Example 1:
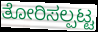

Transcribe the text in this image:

ತೋರಿಸಲ್ಪಟ್ಟ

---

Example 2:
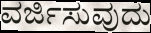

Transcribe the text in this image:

ವರ್ಜಿಸುವುದು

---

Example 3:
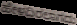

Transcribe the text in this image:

ಹೇಳದಿರಲಾಗದು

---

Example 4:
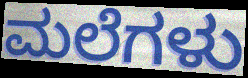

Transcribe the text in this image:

ಮಲೆಗಳು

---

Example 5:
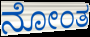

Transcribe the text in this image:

ನೋಂತ